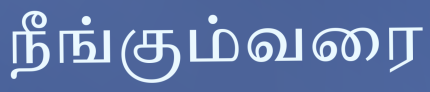
நீங்கும்வரை